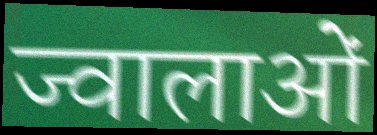
ज्वालाओं